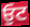
ਓੁਟ